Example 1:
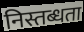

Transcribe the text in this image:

निस्तब्धता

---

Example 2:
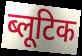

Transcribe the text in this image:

ब्लूटिक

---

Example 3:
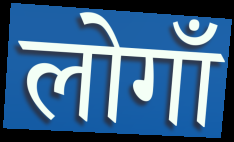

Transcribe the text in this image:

लोगाँ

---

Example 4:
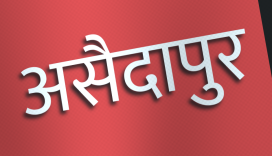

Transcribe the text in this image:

असैदापुर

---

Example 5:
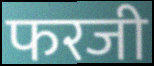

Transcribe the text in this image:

फरजी